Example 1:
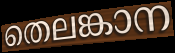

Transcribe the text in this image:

തെലങ്കാന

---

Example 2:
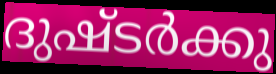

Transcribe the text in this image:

ദുഷ്ടർക്കു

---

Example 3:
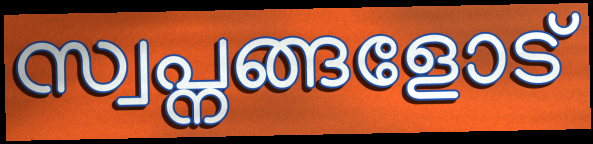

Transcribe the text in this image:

സ്വപ്നങ്ങളോട്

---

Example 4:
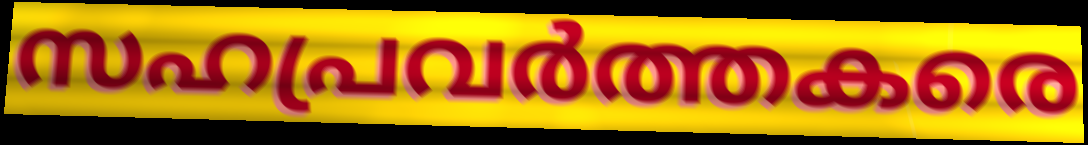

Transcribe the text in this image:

സഹപ്രവർത്തകരെ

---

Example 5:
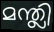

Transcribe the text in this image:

മന്ത്ലി